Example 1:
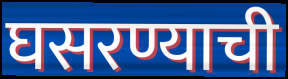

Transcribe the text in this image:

घसरण्याची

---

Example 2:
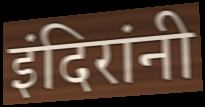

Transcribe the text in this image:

इंदिरांनी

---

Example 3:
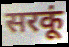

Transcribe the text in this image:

सरकूं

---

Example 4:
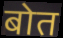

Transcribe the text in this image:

बोत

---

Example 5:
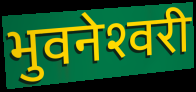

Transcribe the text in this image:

भुवनेश्वरी